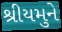
શ્રીયમુને